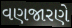
વણજારણે